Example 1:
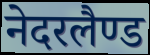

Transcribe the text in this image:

नेदरलैण्ड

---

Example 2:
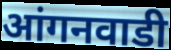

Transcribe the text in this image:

आंगनवाडी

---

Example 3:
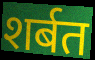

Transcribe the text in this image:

शर्बत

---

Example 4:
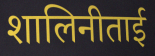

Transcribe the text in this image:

शालिनीताई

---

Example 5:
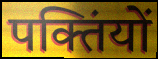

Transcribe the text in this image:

पक्तिंयों